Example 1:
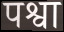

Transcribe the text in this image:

पश्वा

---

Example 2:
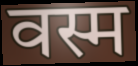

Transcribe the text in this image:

वस्म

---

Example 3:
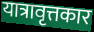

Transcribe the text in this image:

यात्रावृत्तकार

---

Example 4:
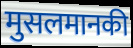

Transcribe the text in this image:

मुसलमानकी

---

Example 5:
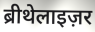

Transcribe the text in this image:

ब्रीथेलाइज़र